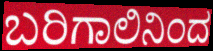
ಬರಿಗಾಲಿನಿಂದ